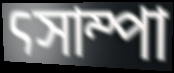
ৎসাম্পা